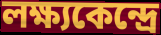
লক্ষ্যকেন্দ্রে